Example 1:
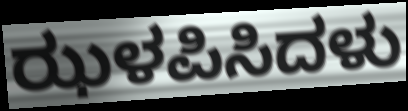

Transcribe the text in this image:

ಝಳಪಿಸಿದಳು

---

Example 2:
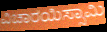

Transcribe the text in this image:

ವಿಚಾರಯಿಸ್ಸಾಮಿ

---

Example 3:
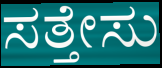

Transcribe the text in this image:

ಸತ್ತೇಸು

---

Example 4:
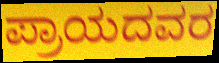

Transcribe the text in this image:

ಪ್ರಾಯದವರ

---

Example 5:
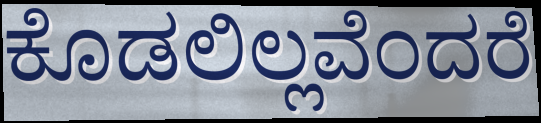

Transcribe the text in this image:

ಕೊಡಲಿಲ್ಲವೆಂದರೆ